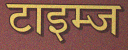
टाइम्ज